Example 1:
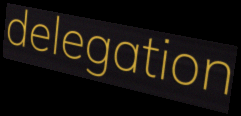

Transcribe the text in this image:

delegation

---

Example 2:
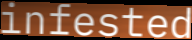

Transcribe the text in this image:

infested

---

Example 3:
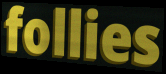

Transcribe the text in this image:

follies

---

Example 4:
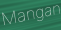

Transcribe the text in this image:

Mangan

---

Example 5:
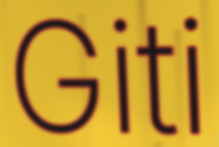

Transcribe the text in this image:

Giti